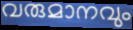
വരുമാനവും